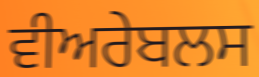
ਵੀਅਰੇਬਲਸ